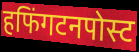
हफिंगटनपोस्ट